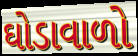
ઘોડાવાળો